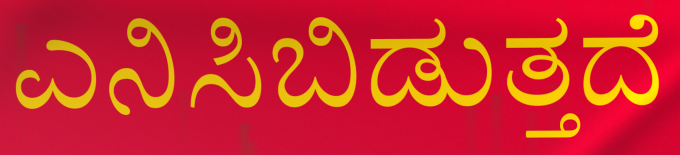
ಎನಿಸಿಬಿಡುತ್ತದೆ